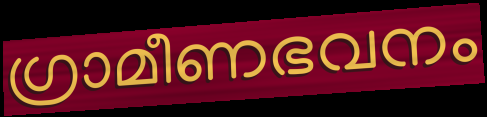
ഗ്രാമീണഭവനം